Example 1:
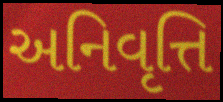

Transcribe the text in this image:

અનિવૃત્તિ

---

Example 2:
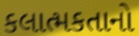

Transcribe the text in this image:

કલાત્મકતાનો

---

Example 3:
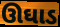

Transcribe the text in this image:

ઊઘાડ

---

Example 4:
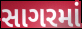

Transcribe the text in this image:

સાગરમાં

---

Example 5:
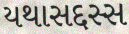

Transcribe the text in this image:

યથાસદ્દસ્સ